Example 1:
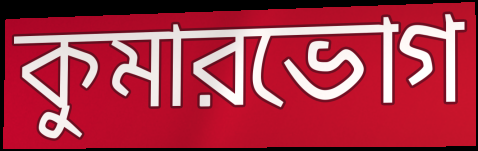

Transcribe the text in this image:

কুমারভোগ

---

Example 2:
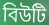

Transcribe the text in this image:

বিউটি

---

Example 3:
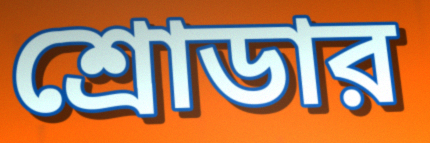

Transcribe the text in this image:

শ্রোডার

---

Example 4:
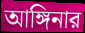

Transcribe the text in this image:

আঙ্গিনার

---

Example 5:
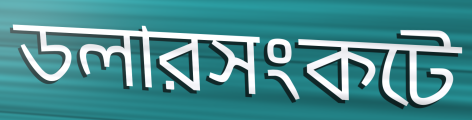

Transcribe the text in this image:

ডলারসংকটে